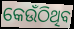
କେଉଁଠିଥିବ